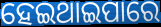
ହେଇଥାଇପାରେ